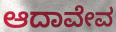
ಆದಾವೇವ